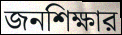
জনশিক্ষার